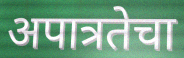
अपात्रतेचा